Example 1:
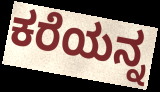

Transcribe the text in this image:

ಕರೆಯನ್ನ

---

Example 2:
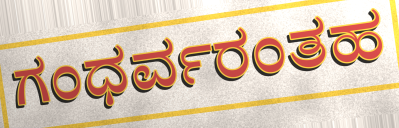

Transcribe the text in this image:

ಗಂಧರ್ವರಂತಹ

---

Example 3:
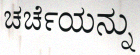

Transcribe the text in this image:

ಚರ್ಚೆಯನ್ನು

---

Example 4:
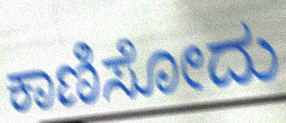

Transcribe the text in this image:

ಕಾಣಿಸೋದು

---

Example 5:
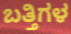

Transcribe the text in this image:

ಬತ್ತಿಗಳ